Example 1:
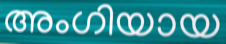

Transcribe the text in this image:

അംഗിയായ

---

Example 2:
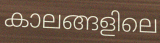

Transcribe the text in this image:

കാലങ്ങളിലെ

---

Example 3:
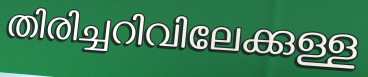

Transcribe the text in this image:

തിരിച്ചറിവിലേക്കുള്ള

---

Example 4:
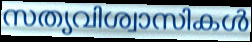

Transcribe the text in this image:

സത്യവിശ്വാസികൾ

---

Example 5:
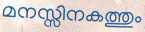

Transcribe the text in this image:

മനസ്സിനകത്തും